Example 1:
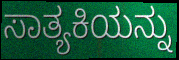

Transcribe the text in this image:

ಸಾತ್ಯಕಿಯನ್ನು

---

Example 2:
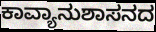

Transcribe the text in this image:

ಕಾವ್ಯಾನುಶಾಸನದ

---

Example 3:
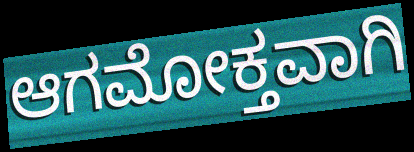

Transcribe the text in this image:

ಆಗಮೋಕ್ತವಾಗಿ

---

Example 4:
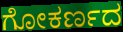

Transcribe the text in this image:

ಗೋಕರ್ಣದ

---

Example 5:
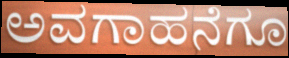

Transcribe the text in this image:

ಅವಗಾಹನೆಗೂ